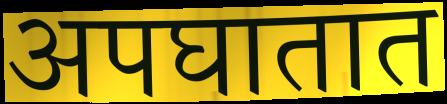
अपघातात